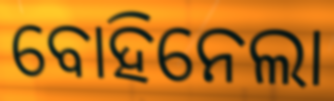
ବୋହିନେଲା